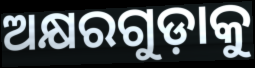
ଅକ୍ଷରଗୁଡ଼ାକୁ